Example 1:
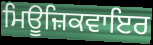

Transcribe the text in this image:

ਮਿਊਜ਼ਿਕਵਾਇਰ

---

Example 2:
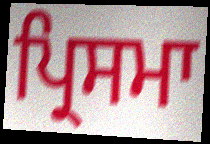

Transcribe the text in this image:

ਪ੍ਰਿਸਮਾ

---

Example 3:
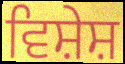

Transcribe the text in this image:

ਵਿਸ਼ੇਸ਼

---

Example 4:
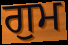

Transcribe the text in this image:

ਗੁਮ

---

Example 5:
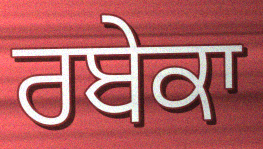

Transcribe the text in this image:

ਰਬੇਕਾ